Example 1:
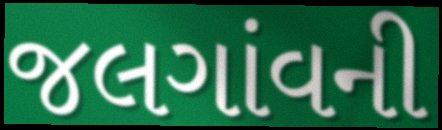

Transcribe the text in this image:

જલગાંવની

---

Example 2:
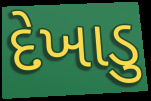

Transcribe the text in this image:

દેખાડુ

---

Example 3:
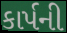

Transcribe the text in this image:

કાર્પની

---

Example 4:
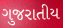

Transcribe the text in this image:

ગુજરાતીય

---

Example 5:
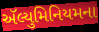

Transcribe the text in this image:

ઍલ્યુમિનિયમના